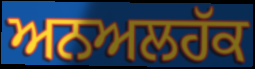
ਅਨਅਲਹੱਕ